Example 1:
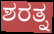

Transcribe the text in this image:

ಶರತ್ನ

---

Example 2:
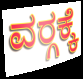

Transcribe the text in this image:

ವರ‍್ಗಕ್ಕೆ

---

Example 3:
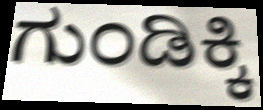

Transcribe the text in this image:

ಗುಂಡಿಕ್ಕಿ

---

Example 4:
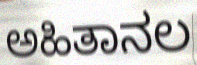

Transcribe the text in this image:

ಅಹಿತಾನಲ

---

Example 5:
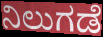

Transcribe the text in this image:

ನಿಲುಗಡೆ